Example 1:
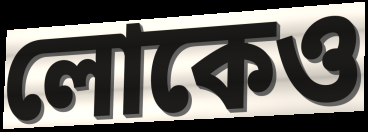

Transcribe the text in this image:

লোকেও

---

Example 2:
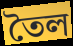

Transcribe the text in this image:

তৈল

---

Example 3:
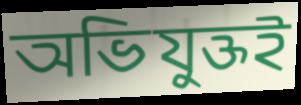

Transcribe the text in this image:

অভিযুক্তই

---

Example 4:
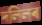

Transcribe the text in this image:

দলিলৰ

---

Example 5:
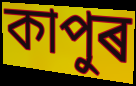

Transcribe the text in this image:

কাপুৰ